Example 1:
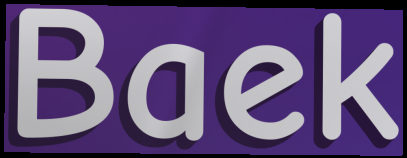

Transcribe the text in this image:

Baek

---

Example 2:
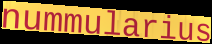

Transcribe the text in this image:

nummularius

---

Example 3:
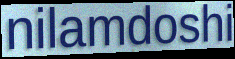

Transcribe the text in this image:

nilamdoshi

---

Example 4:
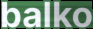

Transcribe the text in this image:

balko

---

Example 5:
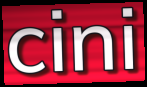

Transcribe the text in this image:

cini